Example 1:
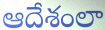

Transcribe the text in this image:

ఆదేశంలా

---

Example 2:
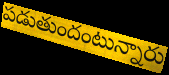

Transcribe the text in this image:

పడుతుందంటున్నారు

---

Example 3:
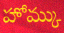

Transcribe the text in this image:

హోమ్కు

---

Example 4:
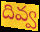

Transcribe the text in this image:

దివ్వ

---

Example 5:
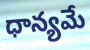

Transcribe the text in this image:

ధాన్యమే